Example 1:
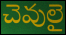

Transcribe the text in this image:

చెవులై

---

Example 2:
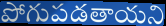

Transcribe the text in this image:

పోగుపడతాయని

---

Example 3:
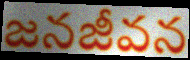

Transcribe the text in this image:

జనజీవన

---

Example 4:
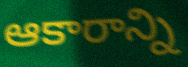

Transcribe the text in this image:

ఆకారాన్ని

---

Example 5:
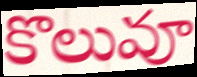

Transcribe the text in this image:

కొలువూ